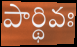
పార్థివః